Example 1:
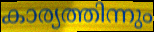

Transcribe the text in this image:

കാര്യത്തിന്നും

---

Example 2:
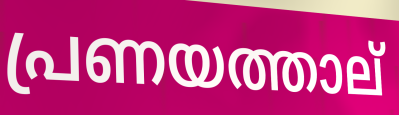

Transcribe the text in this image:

പ്രണയത്താല്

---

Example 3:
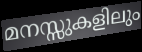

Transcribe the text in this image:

മനസ്സുകളിലും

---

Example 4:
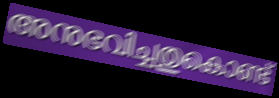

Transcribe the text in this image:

അനുഭവിച്ചതുകൊണ്ട്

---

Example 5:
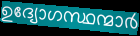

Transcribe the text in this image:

ഉദ്യോഗസ്ഥന്മാർ